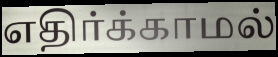
எதிர்க்காமல்